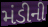
મંડીની